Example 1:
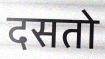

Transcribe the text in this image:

दसतो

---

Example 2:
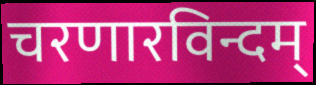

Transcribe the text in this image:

चरणारविन्दम्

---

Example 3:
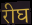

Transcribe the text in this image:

रीघ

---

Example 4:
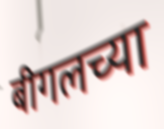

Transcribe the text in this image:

बीगलच्या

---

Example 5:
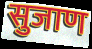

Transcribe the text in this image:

सुजाण